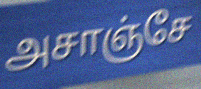
அசாஞ்சே